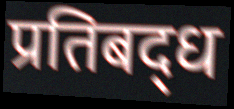
प्रतिबद्ध